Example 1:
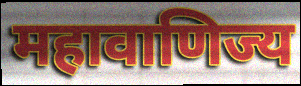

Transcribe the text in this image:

महावाणिज्य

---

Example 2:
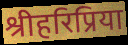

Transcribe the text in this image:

श्रीहरिप्रिया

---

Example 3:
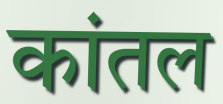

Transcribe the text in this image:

कांतल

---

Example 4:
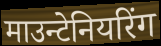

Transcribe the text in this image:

माउन्टेनियरिंग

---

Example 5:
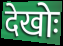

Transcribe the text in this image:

देखोः